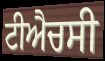
ਟੀਐਚਸੀ